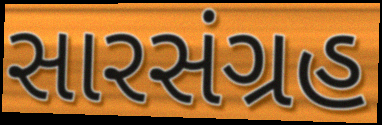
સારસંગ્રહ